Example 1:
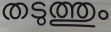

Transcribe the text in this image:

തടുത്തും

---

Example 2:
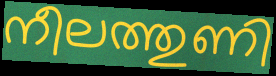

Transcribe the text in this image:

നീലത്തുണി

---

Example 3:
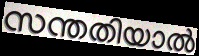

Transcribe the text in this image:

സന്തതിയാൽ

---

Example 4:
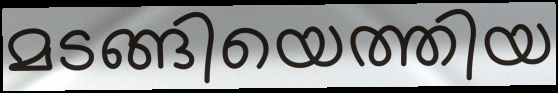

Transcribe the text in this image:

മടങ്ങിയെത്തിയ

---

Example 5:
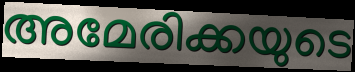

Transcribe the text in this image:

അമേരിക്കയുടെ